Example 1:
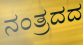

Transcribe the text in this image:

ನಂತ್ರದದ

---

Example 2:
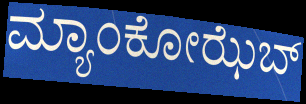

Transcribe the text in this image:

ಮ್ಯಾಂಕೋಝೆಬ್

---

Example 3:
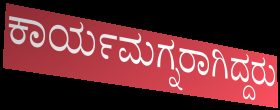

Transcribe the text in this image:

ಕಾರ್ಯಮಗ್ನರಾಗಿದ್ದರು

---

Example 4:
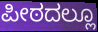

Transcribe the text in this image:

ಪೀಠದಲ್ಲೂ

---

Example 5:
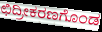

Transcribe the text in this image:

ಛಿದ್ರೀಕರಣಗೊಂಡ